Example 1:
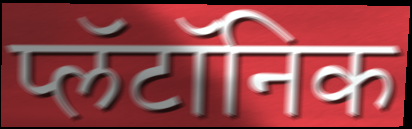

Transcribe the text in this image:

प्लॅटॉनिक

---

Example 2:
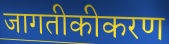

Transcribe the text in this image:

जागतीकीकरण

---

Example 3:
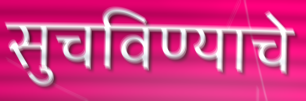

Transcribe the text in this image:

सुचविण्याचे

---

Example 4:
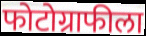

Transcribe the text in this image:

फोटोग्राफीला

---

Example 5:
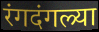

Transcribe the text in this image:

रंगदंगल्या